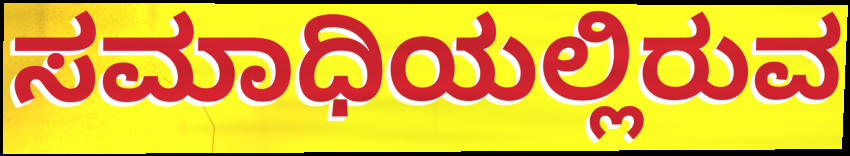
ಸಮಾಧಿಯಲ್ಲಿರುವ